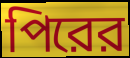
পিরের